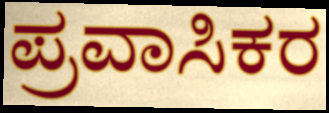
ಪ್ರವಾಸಿಕರ